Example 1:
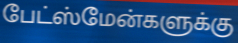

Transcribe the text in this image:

பேட்ஸ்மேன்களுக்கு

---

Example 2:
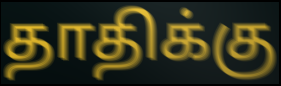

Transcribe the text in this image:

தாதிக்கு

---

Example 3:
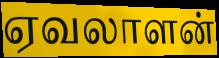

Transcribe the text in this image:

ஏவலாளன்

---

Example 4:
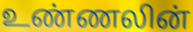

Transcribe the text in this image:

உண்ணலின்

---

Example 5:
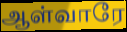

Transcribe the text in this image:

ஆள்வாரே